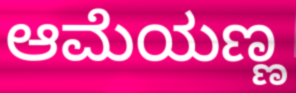
ಆಮೆಯಣ್ಣ